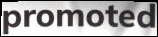
promoted